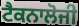
ਟੈਕਨਾਲੋਜੀ